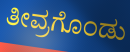
ತೀವ್ರಗೊಂಡು